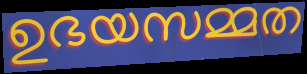
ഉഭയസമ്മത